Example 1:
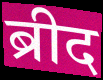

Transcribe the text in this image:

ब्रीद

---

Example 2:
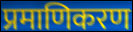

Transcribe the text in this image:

प्रमाणिकरण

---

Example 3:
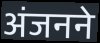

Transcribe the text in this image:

अंजनने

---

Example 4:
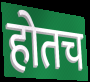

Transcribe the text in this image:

होतच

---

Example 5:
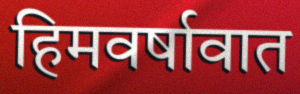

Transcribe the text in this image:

हिमवर्षावात